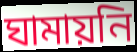
ঘামায়নি